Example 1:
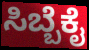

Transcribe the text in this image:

ಸಿಬ್ಬೆಕೈ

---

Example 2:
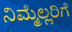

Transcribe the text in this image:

ನಿಮ್ಮೆಲ್ಲರಿಗೆ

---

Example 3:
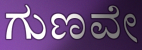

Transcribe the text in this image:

ಗುಣವೇ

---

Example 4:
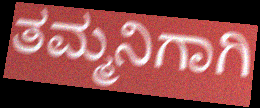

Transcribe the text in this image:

ತಮ್ಮನಿಗಾಗಿ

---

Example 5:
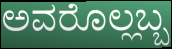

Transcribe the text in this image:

ಅವರೊಲ್ಲಬ್ಬ